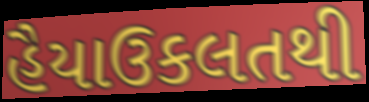
હૈયાઉકલતથી